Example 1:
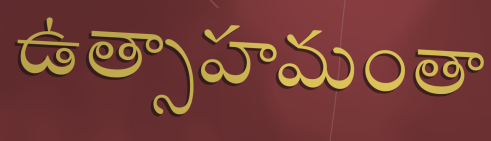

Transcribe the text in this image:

ఉత్సాహమంతా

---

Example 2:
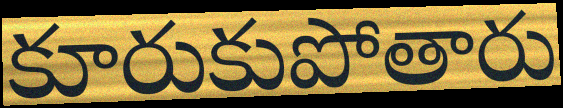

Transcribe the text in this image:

కూరుకుపోతారు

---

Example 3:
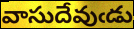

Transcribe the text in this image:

వాసుదేవుఁడు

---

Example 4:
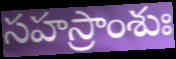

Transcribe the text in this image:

సహస్రాంశుః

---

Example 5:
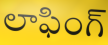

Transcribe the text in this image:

లాఫింగ్